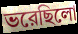
ভরেছিলো